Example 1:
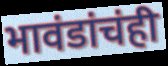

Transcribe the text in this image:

भावंडांचंही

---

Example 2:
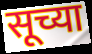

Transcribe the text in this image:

सूच्या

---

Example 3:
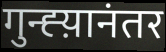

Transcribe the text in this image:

गुन्ह्य़ानंतर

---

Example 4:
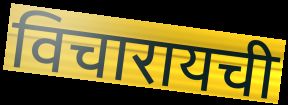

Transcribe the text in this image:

विचारायची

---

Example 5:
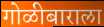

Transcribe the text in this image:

गोळीबाराला